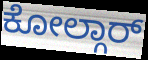
ಕೋಲ್ಗಾರ್